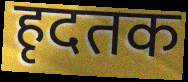
हृदतक